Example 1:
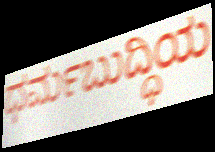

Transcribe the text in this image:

ಧರ್ಮಬುದ್ಧಿಯ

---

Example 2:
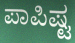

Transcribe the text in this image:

ಪಾಪಿಷ್ಟ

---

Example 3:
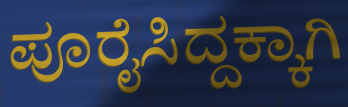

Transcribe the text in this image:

ಪೂರೈಸಿದ್ದಕ್ಕಾಗಿ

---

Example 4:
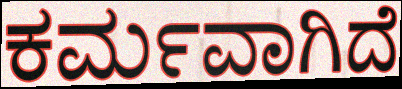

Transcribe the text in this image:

ಕರ್ಮವಾಗಿದೆ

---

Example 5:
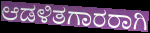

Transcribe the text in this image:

ಆಡಳಿತಗಾರರಾಗಿ